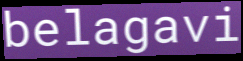
belagavi